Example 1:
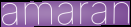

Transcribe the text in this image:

amaran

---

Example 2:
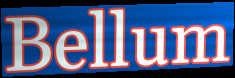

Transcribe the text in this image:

Bellum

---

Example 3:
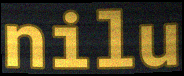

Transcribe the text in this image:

nilu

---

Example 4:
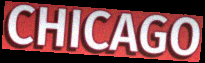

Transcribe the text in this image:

CHICAGO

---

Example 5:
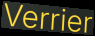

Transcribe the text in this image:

Verrier